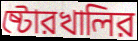
ষ্টোরখালির